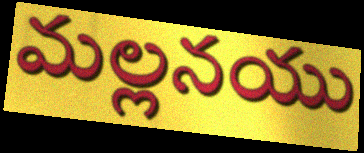
మల్లనయు